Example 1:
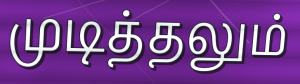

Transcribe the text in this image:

முடித்தலும்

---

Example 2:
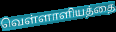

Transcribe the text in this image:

வெள்ளாளியத்தை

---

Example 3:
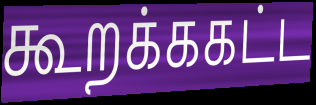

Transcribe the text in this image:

கூறக்ககட்ட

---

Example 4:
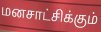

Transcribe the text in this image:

மனசாட்சிக்கும்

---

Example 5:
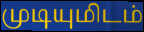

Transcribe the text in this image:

முடியுமிடம்